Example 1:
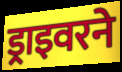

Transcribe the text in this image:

ड्राइवरने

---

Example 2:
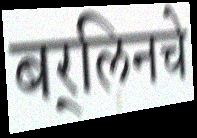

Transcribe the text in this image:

बर्लिनचे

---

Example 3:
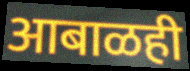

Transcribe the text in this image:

आबाळही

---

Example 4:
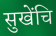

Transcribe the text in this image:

सुखेंचि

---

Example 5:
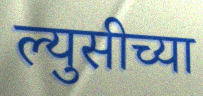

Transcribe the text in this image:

ल्युसीच्या